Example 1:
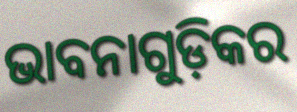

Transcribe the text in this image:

ଭାବନାଗୁଡ଼ିକର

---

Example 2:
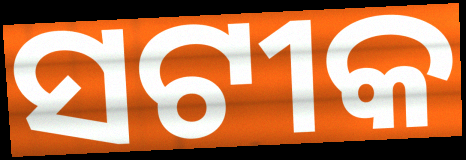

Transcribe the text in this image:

ସଟୀକ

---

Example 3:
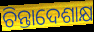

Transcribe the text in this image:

ଚିନ୍ତାଦେଶାକ୍ଷ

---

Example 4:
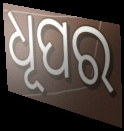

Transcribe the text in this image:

ଧୂପର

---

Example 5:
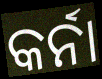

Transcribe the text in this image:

କର୍ନା